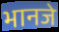
भानजे